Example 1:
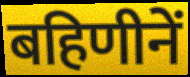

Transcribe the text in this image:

बहिणीनें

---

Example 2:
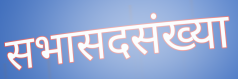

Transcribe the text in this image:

सभासदसंख्या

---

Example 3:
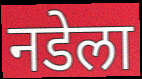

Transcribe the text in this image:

नडेला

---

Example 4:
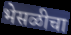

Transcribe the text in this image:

भेसळीचा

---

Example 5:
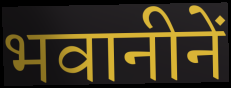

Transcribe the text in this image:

भवानीनें